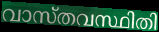
വാസ്തവസ്ഥിതി